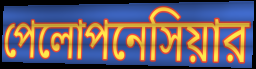
পেলোপনেসিয়ার